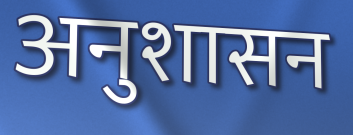
अनुशासन